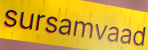
sursamvaad